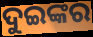
ଦୁଇଙ୍କର